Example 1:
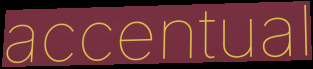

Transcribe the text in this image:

accentual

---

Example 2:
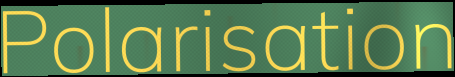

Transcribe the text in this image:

Polarisation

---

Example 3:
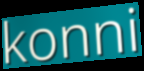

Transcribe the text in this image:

konni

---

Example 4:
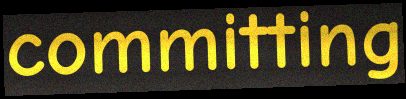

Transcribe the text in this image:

committing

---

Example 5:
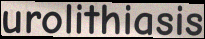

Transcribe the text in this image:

urolithiasis